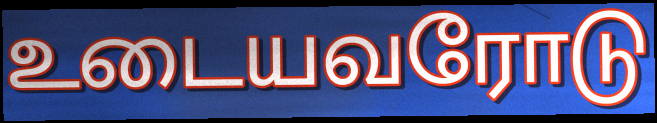
உடையவரோடு